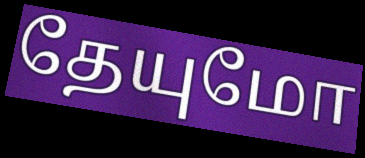
தேயுமோ